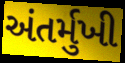
અંતર્મુખી